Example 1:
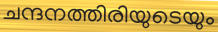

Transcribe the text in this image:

ചന്ദനത്തിരിയുടെയും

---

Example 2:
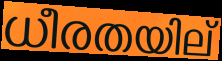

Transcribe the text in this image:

ധീരതയില്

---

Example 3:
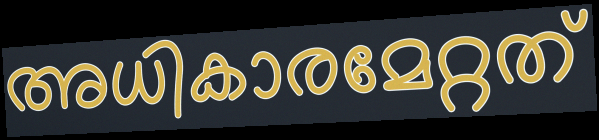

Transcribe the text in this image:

അധികാരമേറ്റത്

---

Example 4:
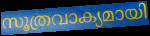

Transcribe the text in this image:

സൂത്രവാക്യമായി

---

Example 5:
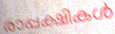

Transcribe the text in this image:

രാപ്പക്ഷികൾ